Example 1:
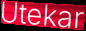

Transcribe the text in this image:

Utekar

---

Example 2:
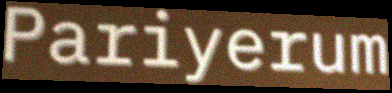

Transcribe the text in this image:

Pariyerum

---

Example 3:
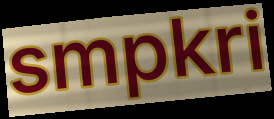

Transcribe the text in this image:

smpkri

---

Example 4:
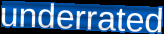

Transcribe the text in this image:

underrated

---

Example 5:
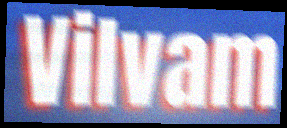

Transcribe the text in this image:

Vilvam